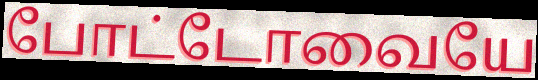
போட்டோவையே